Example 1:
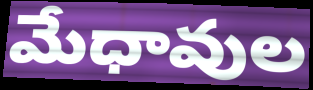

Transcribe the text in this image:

మేధావుల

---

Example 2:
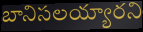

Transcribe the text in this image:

బానిసలయ్యారని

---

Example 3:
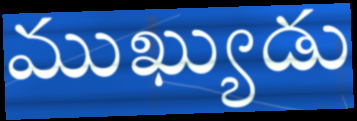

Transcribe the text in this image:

ముఖ్యుడు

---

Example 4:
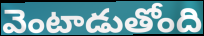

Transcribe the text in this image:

వెంటాడుతోంది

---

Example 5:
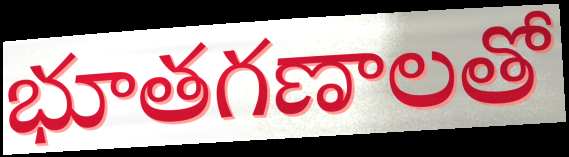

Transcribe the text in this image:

భూతగణాలతో